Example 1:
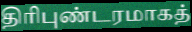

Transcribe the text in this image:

திரிபுண்டரமாகத்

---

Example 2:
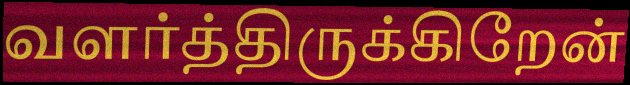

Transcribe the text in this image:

வளர்த்திருக்கிறேன்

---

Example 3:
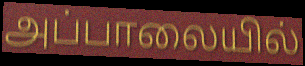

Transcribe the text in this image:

அப்பாலையில்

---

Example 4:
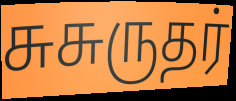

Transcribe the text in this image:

சுசுருதர்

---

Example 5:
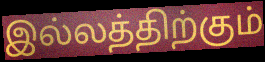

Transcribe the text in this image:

இல்லத்திற்கும்